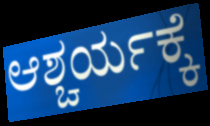
ಆಶ್ಚರ್ಯಕ್ಕೆ